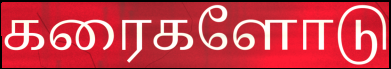
கரைகளோடு